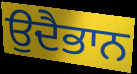
ਉਦੈਭਾਨ